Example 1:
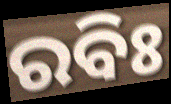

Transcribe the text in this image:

ରବିଃ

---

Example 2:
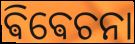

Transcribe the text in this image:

ଵିଵେଚନା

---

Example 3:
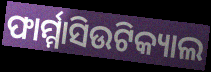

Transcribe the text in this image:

ଫାର୍ମ୍ମାସିଉଟିକ୍ୟାଲ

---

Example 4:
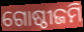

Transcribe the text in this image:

ଗୋଷ୍ଠୀଜମି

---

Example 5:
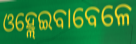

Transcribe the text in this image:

ଓହ୍ଲେଇବାବେଳେ